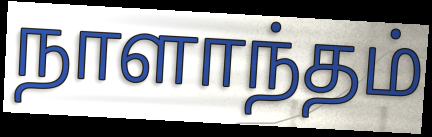
நாளாந்தம்